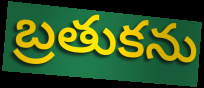
బ్రతుకను